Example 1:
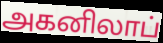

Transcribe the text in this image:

அகனிலாப்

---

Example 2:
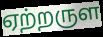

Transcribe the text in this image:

ஏற்றருள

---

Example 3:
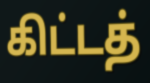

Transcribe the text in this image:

கிட்டத்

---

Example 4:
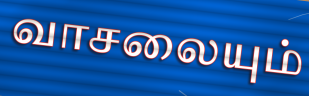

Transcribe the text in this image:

வாசலையும்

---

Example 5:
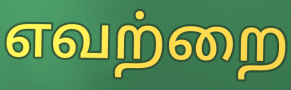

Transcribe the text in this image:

எவற்றை